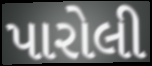
પારોલી